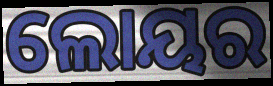
ଲୋୟର